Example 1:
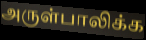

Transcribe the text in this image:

அருள்பாலிக்க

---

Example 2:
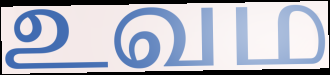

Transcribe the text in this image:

உவம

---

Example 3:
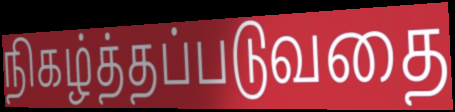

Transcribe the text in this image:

நிகழ்த்தப்படுவதை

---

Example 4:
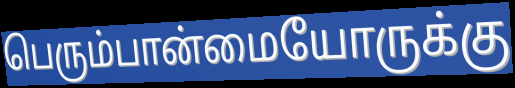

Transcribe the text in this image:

பெரும்பான்மையோருக்கு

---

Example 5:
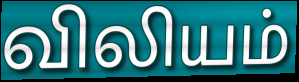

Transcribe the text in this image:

விலியம்